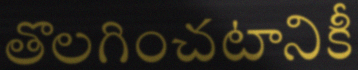
తొలగించటానికీ